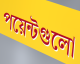
পয়েন্টগুলো